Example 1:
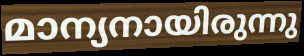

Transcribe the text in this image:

മാന്യനായിരുന്നു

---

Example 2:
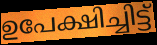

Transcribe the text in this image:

ഉപേക്ഷിച്ചിട്ട്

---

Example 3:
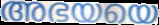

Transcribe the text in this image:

അഭയയെ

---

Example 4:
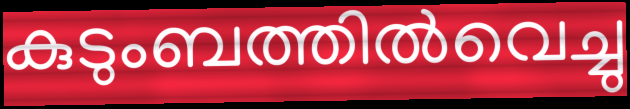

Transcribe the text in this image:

കുടുംബത്തിൽവെച്ചു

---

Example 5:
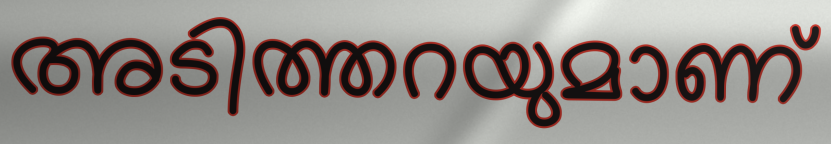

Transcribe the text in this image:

അടിത്തറയുമാണ്